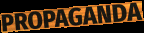
PROPAGANDA